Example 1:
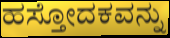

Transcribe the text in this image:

ಹಸ್ತೋದಕವನ್ನು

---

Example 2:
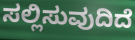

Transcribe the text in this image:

ಸಲ್ಲಿಸುವುದಿದೆ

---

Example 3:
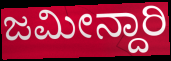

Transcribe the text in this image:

ಜಮೀನ್ದಾರಿ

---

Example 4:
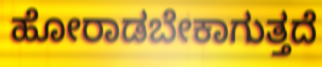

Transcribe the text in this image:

ಹೋರಾಡಬೇಕಾಗುತ್ತದೆ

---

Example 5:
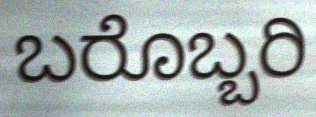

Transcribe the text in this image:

ಬರೊಬ್ಬರಿ